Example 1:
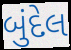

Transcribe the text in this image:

બુંદેલ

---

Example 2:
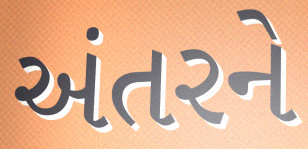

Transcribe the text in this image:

અંતરને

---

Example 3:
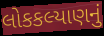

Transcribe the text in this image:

લોકકલ્યાણનું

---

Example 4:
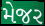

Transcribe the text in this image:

મેજર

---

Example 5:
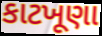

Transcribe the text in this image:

કાટખૂણા